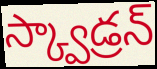
స్క్వాడ్రన్